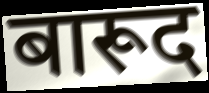
बारूद